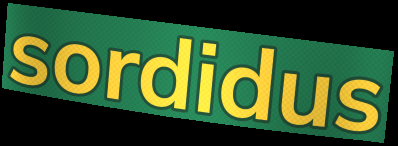
sordidus